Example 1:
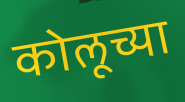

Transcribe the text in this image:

कोलूच्या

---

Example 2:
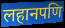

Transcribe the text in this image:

लहानपणि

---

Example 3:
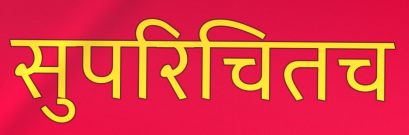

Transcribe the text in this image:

सुपरिचितच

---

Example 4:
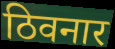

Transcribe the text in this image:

ठिवनार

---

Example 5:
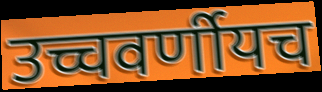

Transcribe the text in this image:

उच्चवर्णीयच